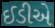
ઈડીએ